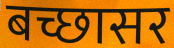
बच्छासर